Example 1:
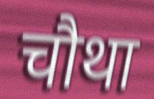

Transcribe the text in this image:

चौथा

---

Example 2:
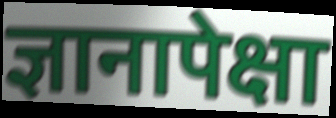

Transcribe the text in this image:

ज्ञानापेक्षा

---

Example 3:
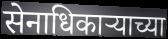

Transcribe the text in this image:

सेनाधिकाऱ्याच्या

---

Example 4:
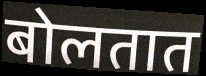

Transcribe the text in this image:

बोलतात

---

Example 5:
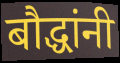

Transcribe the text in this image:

बौद्धांनी